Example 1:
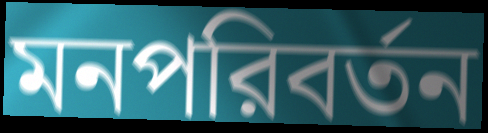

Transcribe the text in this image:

মনপরিবর্তন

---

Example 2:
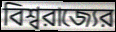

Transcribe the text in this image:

বিশ্বরাজ্যের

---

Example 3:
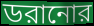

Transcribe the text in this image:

ডরানোর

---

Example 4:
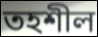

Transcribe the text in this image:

তহশীল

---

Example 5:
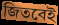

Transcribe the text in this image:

জিতবেই